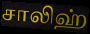
சாலிஹ்